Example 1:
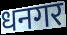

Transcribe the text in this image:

धनगर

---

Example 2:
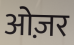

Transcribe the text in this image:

ओज़र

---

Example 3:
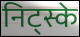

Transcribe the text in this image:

निट्स्के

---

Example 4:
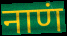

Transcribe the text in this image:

नाणं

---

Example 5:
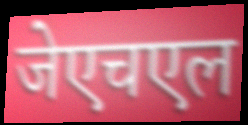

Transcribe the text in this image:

जेएचएल